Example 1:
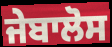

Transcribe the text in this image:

ਜੇਬਾਲੋਸ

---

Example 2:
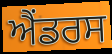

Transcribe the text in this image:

ਐਂਡਰਸ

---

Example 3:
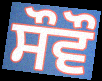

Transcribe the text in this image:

ਸੌਵੌ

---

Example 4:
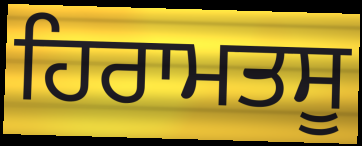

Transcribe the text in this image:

ਹਿਰਾਮਤਸੂ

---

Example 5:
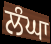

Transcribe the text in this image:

ਲੰਘਾ